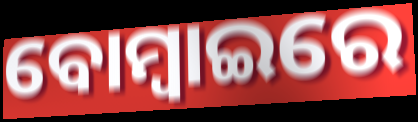
ବୋମ୍ୱାଇରେ